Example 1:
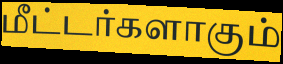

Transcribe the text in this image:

மீட்டர்களாகும்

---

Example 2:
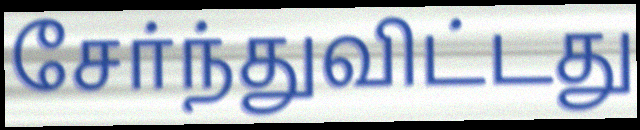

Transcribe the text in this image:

சேர்ந்துவிட்டது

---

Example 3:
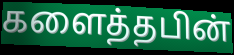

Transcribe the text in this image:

களைத்தபின்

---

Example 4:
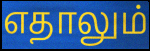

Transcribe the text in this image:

எதாலும்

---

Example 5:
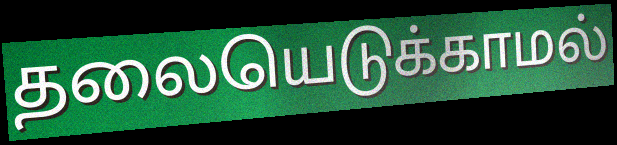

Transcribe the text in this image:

தலையெடுக்காமல்